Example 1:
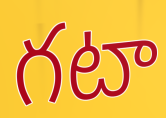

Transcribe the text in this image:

గటా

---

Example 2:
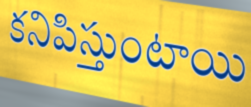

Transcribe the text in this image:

కనిపిస్తుంటాయి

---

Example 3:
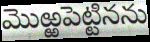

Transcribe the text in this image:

మొఱ్ఱపెట్టినను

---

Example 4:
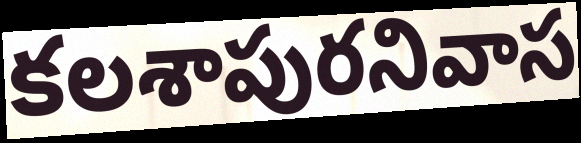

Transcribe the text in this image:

కలశాపురనివాస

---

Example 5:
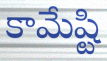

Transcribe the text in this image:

కామేష్టి